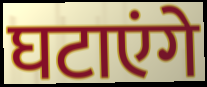
घटाएंगे